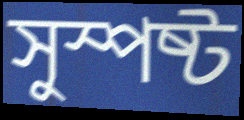
সুস্পষ্ট